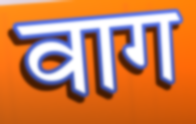
वाग